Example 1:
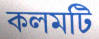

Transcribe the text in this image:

কলমটি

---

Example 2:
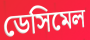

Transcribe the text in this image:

ডেসিমেল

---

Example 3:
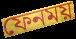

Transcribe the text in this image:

ফেনময়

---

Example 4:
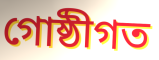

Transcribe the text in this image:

গোষ্ঠীগত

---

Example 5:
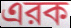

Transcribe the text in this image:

এরক